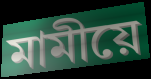
মামীয়ে